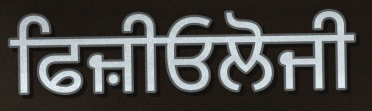
ਫਿਜ਼ੀਓਲੋਜੀ